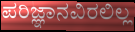
ಪರಿಜ್ಞಾನವಿರಲಿಲ್ಲ